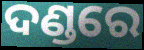
ଦଣ୍ଡରେ